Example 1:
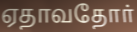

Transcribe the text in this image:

ஏதாவதோர்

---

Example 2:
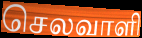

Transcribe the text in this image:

செலவாளி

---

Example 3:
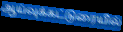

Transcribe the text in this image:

ஆய்வுக்கட்டுரையில்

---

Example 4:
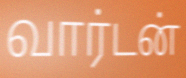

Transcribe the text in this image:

வார்டன்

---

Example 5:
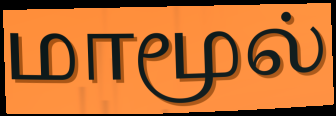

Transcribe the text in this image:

மாமூல்